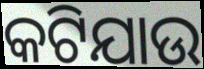
କଟିଯାଉ